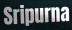
Sripurna